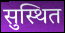
सुस्थित